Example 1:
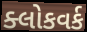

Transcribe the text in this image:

ક્લોકવર્ક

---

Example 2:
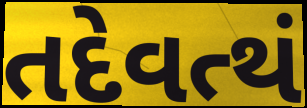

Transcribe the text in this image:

તદેવત્થં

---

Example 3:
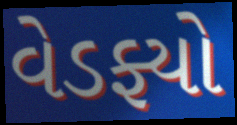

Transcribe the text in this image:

વેડફ્યો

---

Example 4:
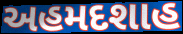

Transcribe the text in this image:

અહમદશાહ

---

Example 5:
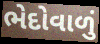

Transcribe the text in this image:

ભેદોવાળું